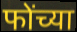
फोंच्या